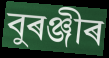
বুৰঞ্জীৰ